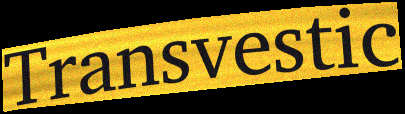
Transvestic